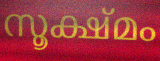
സൂക്ഷ്‌മം